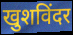
खुशविंदर